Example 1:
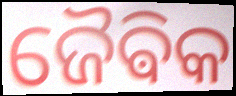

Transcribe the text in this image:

ଜୈଵିକ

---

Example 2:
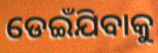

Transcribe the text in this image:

ଡେଇଁଯିବାକୁ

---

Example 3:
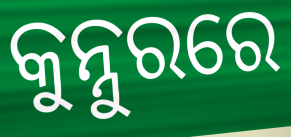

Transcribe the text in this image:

କୁନ୍ନୁରରେ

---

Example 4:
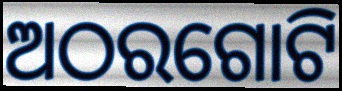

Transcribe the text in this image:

ଅଠରଗୋଟି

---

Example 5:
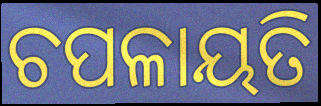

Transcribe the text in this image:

ଚପଳାୟତି